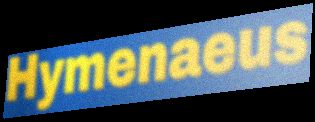
Hymenaeus